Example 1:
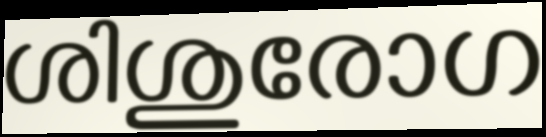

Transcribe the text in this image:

ശിശുരോഗ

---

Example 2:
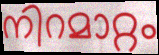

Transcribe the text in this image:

നിറമാറ്റം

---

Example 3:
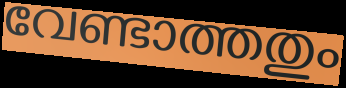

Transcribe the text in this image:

വേണ്ടാത്തതും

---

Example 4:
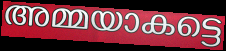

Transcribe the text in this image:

അമ്മയാകട്ടെ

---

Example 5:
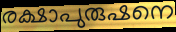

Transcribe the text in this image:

രക്ഷാപുരുഷനെ